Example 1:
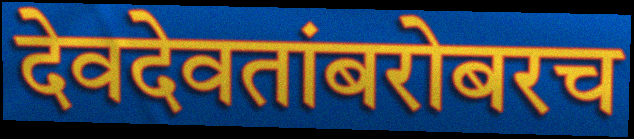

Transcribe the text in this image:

देवदेवतांबरोबरच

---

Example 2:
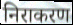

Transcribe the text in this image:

निराकरण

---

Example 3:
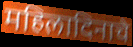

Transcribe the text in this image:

महिलादिनाचे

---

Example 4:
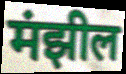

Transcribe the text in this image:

मंझील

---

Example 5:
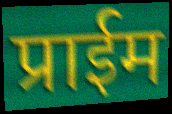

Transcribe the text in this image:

प्राईम